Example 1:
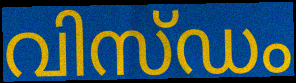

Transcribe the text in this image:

വിസ്ഡം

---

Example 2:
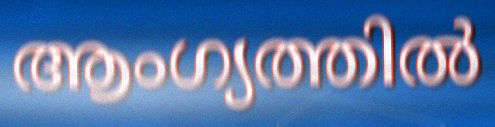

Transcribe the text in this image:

ആംഗ്യത്തിൽ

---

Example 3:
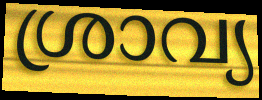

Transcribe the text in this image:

ശ്രാവ്യ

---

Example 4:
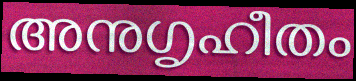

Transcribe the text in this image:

അനുഗൃഹീതം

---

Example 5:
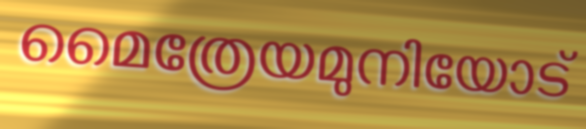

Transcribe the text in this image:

മൈത്രേയമുനിയോട്